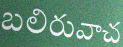
బలిరువాచ